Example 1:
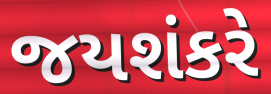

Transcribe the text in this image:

જયશંકરે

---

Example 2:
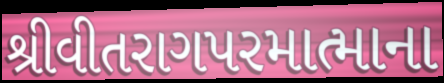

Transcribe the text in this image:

શ્રીવીતરાગપરમાત્માના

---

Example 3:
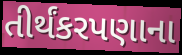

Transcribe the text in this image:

તીર્થંકરપણાના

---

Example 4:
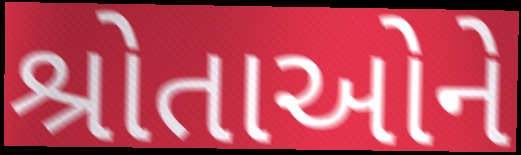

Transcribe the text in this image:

શ્રોતાઓને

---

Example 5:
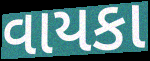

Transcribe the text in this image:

વાયકા